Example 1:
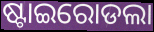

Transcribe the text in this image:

ଷ୍ଟାଇରୋଡଲା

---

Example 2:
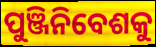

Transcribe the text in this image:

ପୁଞ୍ଜିନିବେଶକୁ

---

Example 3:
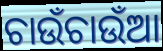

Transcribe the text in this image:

ଚାଉଁଚାଉଁଆ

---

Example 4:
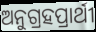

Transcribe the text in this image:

ଅନୁଗ୍ରହପ୍ରାର୍ଥୀ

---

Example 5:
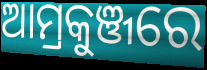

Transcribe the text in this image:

ଆମ୍ରକୁଞ୍ଜରେ